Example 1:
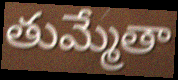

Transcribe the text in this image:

తుమ్మేతా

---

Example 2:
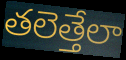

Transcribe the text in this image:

తలెత్తేలా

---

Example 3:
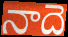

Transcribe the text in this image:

నాదె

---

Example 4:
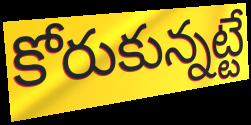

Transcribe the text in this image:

కోరుకున్నట్టే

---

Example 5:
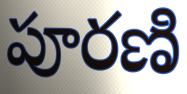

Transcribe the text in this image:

పూరణి